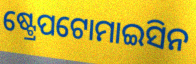
ଷ୍ଟ୍ରେପଟୋମାଇସିନ